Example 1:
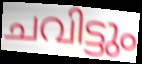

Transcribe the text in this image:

ചവിട്ടും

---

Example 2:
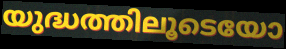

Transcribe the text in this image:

യുദ്ധത്തിലൂടെയോ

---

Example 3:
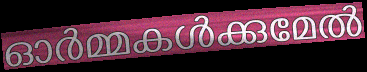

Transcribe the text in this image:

ഓർമ്മകൾക്കുമേൽ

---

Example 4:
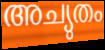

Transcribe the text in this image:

അച്യുതം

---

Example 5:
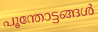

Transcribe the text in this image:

പൂന്തോട്ടങ്ങൾ